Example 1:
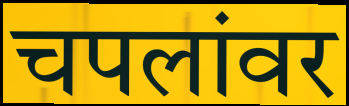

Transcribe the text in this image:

चपलांवर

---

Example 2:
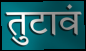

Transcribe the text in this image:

तुटावं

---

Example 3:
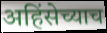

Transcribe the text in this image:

अहिंसेच्याच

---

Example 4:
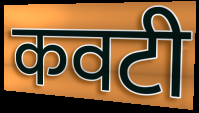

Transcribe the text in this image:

कवटी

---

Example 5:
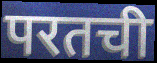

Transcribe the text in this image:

परतची